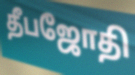
தீபஜோதி